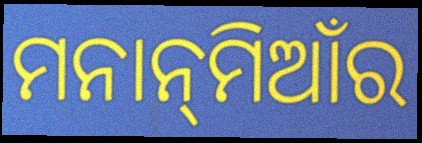
ମନାନ୍‌ମିଆଁର